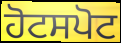
ਹੋਟਸਪੋਟ